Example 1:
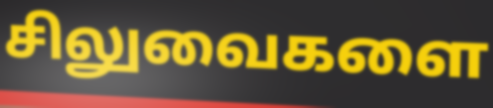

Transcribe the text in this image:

சிலுவைகளை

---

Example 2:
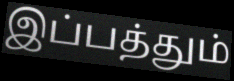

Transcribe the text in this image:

இப்பத்தும்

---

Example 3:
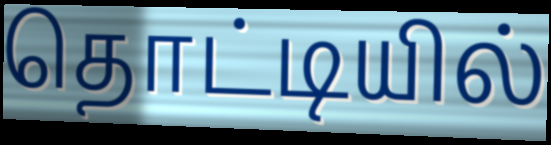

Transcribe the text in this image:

தொட்டியில்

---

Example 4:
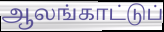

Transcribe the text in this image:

ஆலங்காட்டுப்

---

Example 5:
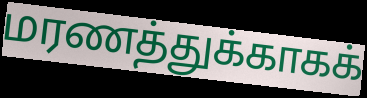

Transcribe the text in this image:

மரணத்துக்காகக்